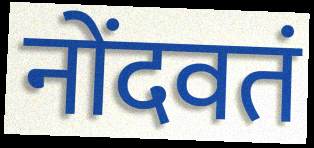
नोंदवतं